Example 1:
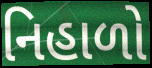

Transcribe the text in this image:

નિહાળો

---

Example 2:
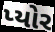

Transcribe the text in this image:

પ્યોર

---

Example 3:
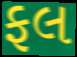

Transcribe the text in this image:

ફલ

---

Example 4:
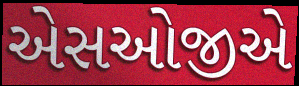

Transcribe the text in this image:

એસઓજીએ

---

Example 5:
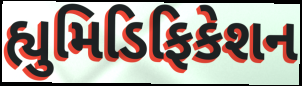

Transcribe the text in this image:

હ્યુમિડિફિકેશન